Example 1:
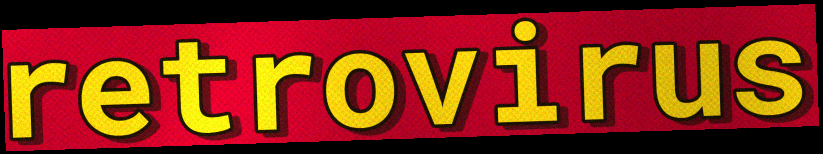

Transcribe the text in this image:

retrovirus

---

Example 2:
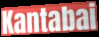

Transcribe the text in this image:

Kantabai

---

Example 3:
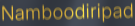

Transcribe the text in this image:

Namboodiripad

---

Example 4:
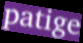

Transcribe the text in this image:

patige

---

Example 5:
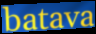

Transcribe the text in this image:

batava